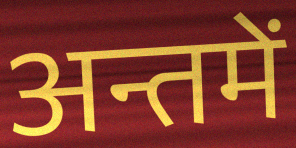
अन्तमें